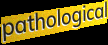
pathological